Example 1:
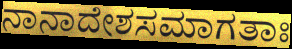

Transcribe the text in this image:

ನಾನಾದೇಶಸಮಾಗತಾಃ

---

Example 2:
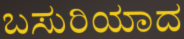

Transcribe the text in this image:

ಬಸುರಿಯಾದ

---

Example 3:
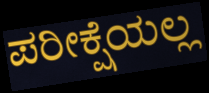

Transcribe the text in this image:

ಪರೀಕ್ಷೆಯಲ್ಲ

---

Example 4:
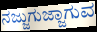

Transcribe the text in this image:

ನಜ್ಜುಗುಜ್ಜಾಗುವ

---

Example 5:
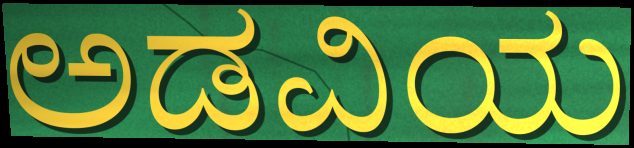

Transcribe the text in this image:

ಅಡವಿಯ